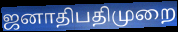
ஜனாதிபதிமுறை